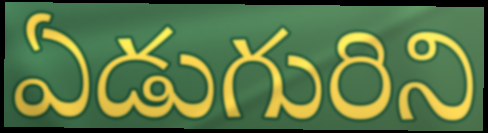
ఏడుగురిని